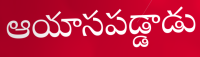
ఆయాసపడ్డాడు